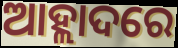
ଆହ୍ଲାଦରେ